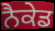
ਨੈਕੇਡ